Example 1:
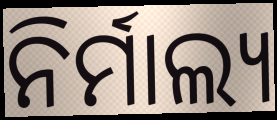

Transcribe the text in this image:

ନିର୍ମାଲ୍ୟ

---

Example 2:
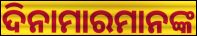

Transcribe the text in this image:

ଦିନାମାରମାନଙ୍କ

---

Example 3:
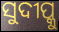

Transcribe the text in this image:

ସୁଦୀପ୍କୁ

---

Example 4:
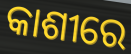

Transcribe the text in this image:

କାଶୀରେ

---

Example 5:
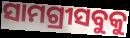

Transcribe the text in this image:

ସାମଗ୍ରୀସବୁକୁ